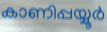
കാണിപ്പയ്യൂർ